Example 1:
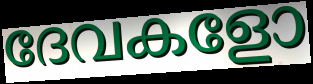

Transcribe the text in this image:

ദേവകളോ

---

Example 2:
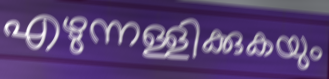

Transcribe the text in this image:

എഴുന്നള്ളിക്കുകയും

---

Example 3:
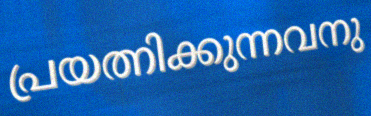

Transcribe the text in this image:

പ്രയത്നിക്കുന്നവനു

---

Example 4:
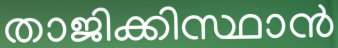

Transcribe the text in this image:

താജിക്കിസ്ഥാൻ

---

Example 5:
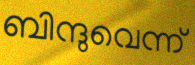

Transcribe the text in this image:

ബിന്ദുവെന്ന്